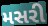
મસરી